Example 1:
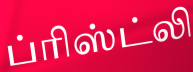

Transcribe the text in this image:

ப்ரிஸ்ட்லி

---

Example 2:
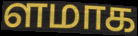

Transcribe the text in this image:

ளமாக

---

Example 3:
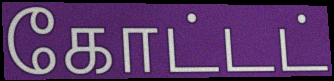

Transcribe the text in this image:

கோட்டட்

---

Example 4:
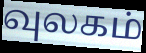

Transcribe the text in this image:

வுலகம்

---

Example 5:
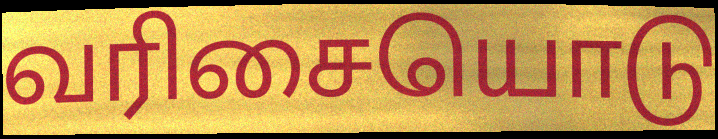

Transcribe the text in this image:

வரிசையொடு